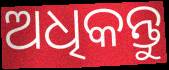
ଅଧିକନ୍ତୁ